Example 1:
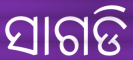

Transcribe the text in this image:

ସାଗଡି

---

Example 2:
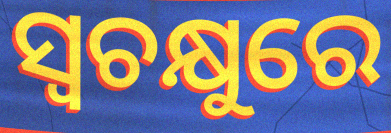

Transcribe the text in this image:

ସ୍ୱଚକ୍ଷୁରେ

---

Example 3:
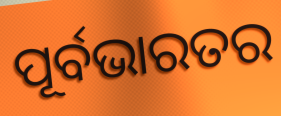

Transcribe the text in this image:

ପୂର୍ବଭାରତର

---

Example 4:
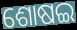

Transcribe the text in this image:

ଶୋଷଇ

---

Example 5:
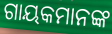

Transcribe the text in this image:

ଗାୟକମାନଙ୍କ